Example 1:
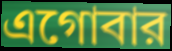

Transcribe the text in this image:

এগোবার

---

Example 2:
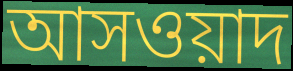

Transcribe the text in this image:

আসওয়াদ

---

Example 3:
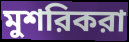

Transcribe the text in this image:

মুশরিকরা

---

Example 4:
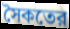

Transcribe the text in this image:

সৈকতের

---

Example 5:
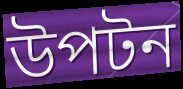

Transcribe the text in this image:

উপটন